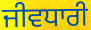
ਜੀਵਧਾਰੀ